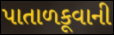
પાતાળકૂવાની